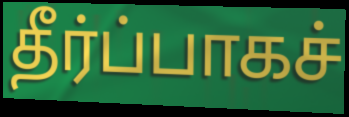
தீர்ப்பாகச்